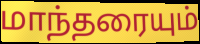
மாந்தரையும்